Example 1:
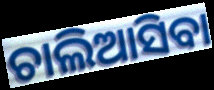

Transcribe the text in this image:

ଚାଲିଆସିବା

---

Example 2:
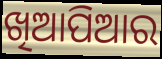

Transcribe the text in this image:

ଖିଆପିଆର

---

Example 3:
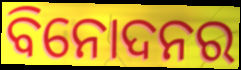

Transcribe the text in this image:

ବିନୋଦନର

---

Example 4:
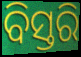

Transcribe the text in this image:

ବିସ୍ତରି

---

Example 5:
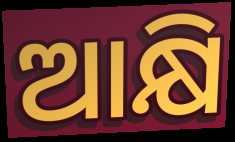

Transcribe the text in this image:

ଆକ୍ଷି